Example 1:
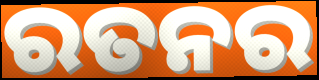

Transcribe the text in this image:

ରତନର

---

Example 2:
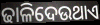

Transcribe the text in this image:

ଢାଳିଦେଉଥାଏ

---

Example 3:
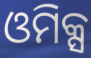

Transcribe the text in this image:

ଓମିକ୍ସ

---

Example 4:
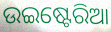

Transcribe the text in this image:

ଉଇଷ୍ଟେରିଆ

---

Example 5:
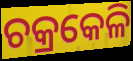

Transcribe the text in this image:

ଚକ୍ରକେଳି